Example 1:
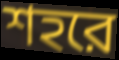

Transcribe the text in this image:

শহরে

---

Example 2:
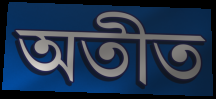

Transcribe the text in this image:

অতীত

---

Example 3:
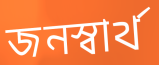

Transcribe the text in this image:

জনস্বার্থ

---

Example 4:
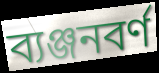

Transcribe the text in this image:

ব্যঞ্জনবর্ণ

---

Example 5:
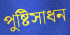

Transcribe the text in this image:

পুষ্টিসাধন